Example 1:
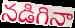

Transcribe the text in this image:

నడిగినా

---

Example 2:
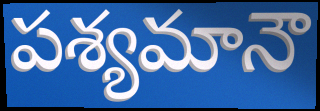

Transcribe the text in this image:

పశ్యమానౌ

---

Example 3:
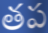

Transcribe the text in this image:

తప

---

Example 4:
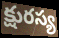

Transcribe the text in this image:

క్షురస్య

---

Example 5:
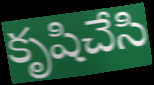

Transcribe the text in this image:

కృషిచేసి